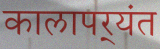
कालापर्यंत